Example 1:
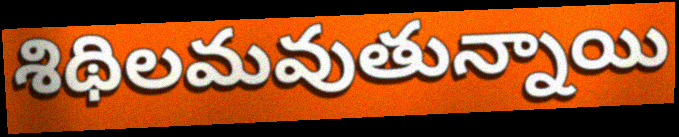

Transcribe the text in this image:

శిథిలమవుతున్నాయి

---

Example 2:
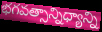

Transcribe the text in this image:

భగవత్సాన్నిధ్యాన్ని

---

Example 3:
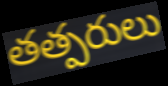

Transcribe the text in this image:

తత్పరులు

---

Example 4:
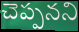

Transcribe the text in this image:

చెప్పనని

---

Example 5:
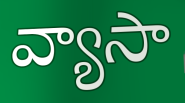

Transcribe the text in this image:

వ్యాసా